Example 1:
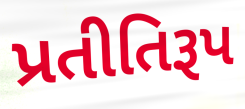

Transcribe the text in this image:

પ્રતીતિરૂપ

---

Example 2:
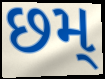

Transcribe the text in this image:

છમ્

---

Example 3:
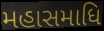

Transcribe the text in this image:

મહાસમાધિ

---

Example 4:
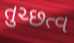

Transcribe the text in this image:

તુચ્છત્વ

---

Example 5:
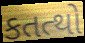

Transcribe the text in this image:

કતત્થો